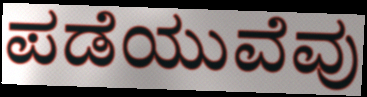
ಪಡೆಯುವೆವು